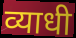
व्याधी